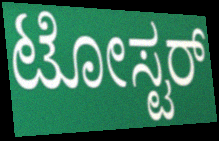
ಟೋಸ್ಟರ್